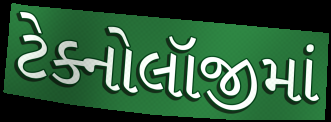
ટેક્નોલૉજીમાં